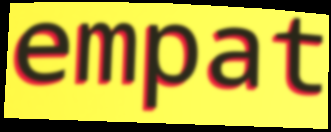
empat